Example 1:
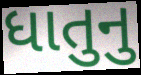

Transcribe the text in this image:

ધાતુનુ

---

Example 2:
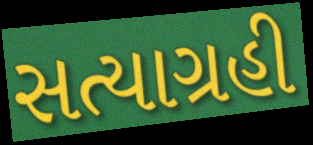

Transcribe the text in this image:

સત્યાગ્રહી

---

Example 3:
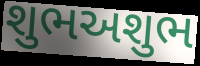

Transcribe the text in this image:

શુભઅશુભ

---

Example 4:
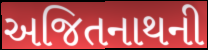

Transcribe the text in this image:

અજિતનાથની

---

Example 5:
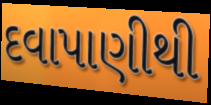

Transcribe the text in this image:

દવાપાણીથી